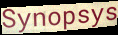
Synopsys